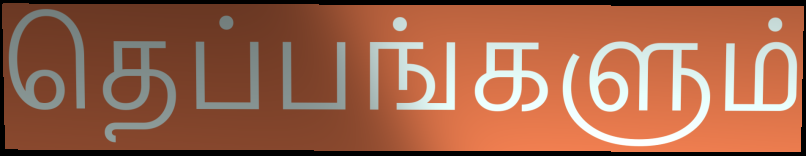
தெப்பங்களும்